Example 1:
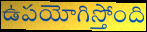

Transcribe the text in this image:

ఉపయోగిస్తోంది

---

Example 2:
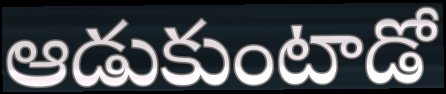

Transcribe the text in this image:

ఆడుకుంటాడో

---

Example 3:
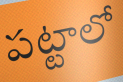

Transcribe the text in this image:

పట్టాలో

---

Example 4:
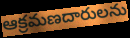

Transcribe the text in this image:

ఆక్రమణదారులను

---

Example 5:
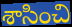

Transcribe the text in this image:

శాసించి